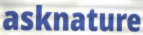
asknature